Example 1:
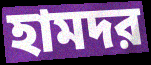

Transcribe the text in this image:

হামদর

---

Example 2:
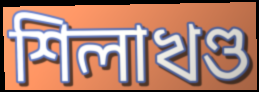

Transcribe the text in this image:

শিলাখণ্ড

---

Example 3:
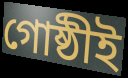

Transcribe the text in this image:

গোষ্ঠীই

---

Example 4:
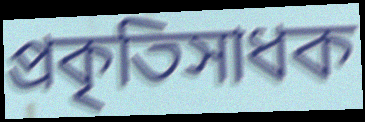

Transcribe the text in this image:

প্রকৃতিসাধক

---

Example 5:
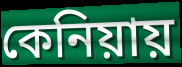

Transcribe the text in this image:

কেনিয়ায়